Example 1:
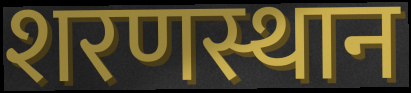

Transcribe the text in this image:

शरणस्थान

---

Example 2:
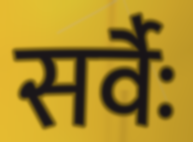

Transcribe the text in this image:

सर्वैः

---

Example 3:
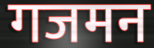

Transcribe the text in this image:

गजमन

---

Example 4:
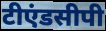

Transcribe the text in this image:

टीएंडसीपी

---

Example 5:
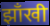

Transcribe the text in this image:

झाँखी